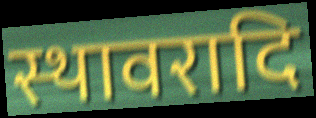
स्थावरादि